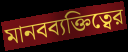
মানবব্যক্তিত্বের